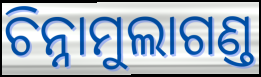
ଚିନ୍ନାମୁଲାଗଣ୍ଡ